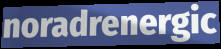
noradrenergic